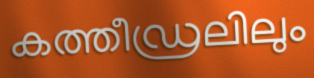
കത്തീഡ്രലിലും